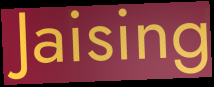
Jaising